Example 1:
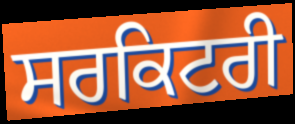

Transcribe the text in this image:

ਸਰਕਿਟਰੀ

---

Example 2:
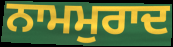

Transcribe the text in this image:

ਨਾਮਮੁਰਾਦ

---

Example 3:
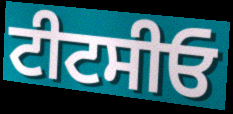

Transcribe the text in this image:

ਟੀਟਸੀਓ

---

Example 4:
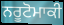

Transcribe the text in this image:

ਨਰੂਟੋਮਾਕੀ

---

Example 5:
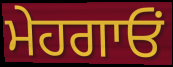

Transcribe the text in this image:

ਮੇਹਗਾਓਂ